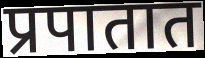
प्रपातात